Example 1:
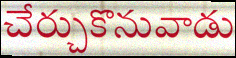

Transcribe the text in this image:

చేర్చుకొనువాడు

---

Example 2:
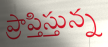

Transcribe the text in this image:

ప్రాప్తిస్తున్న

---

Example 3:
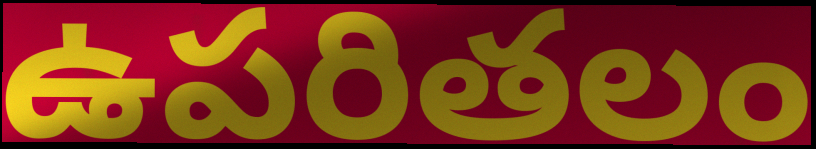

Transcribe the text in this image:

ఉపరితలం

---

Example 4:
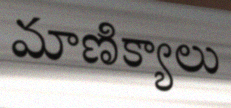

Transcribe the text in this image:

మాణిక్యాలు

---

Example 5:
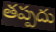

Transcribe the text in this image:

తప్పదు